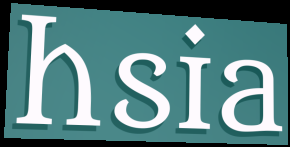
hsia